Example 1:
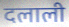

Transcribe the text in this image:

दलाली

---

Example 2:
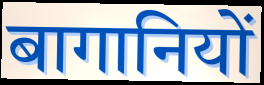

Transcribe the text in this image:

बागानियों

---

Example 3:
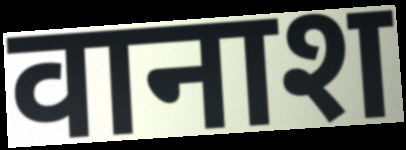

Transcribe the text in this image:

वानाश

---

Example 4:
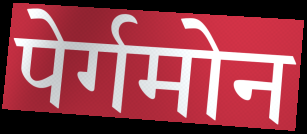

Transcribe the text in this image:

पेर्गमोन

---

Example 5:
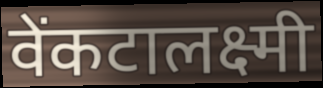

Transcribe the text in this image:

वेंकटालक्ष्मी